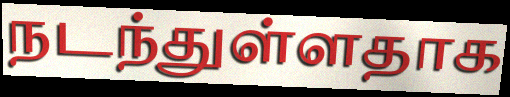
நடந்துள்ளதாக